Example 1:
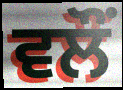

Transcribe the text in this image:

ਵਲੌਂ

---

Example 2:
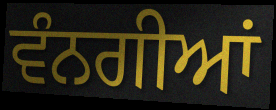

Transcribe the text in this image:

ਵੰਨਗੀਆਂ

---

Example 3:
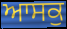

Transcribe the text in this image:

ਆਸਕੁ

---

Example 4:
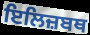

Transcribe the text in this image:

ਇਲਿਜ਼ਬਥ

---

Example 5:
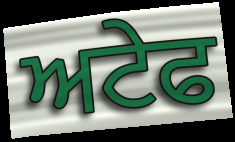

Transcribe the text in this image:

ਅਟੇਫ